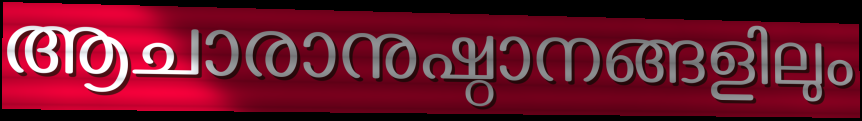
ആചാരാനുഷ്ഠാനങ്ങളിലും